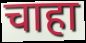
चाहा